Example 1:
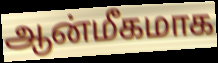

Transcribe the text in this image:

ஆன்மீகமாக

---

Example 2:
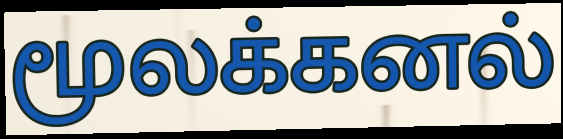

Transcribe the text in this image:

மூலக்கனல்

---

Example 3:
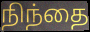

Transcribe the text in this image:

நிந்தை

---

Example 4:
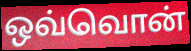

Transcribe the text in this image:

ஒவ்வொன்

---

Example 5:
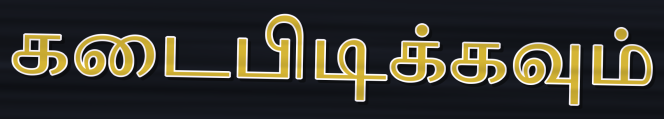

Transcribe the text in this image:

கடைபிடிக்கவும்